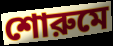
শোরুমে